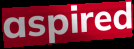
aspired